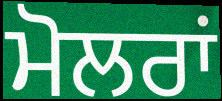
ਮੋਲਰਾਂ